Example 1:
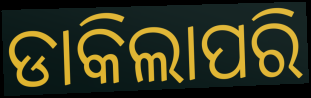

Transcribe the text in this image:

ଡାକିଲାପରି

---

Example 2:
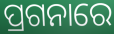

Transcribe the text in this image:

ପ୍ରଗନାରେ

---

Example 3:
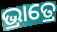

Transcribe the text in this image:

ଭ୍ରାତ୍ରେ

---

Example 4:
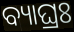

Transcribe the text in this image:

ବ୍ୟାଘ୍ରଃ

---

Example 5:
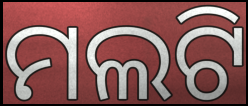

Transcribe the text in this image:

ମଲଟି